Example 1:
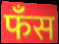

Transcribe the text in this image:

फँस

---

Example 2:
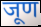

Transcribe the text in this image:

जूण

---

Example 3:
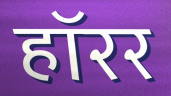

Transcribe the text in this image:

हॉरर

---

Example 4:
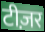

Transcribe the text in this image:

टीज़र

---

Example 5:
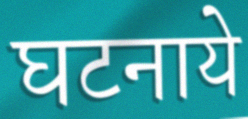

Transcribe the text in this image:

घटनाये